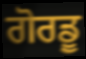
ਗੋਰਡੂ